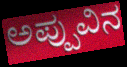
ಅಪ್ಪುವಿನ